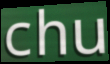
chu